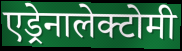
एड्रेनालेक्टोमी